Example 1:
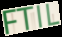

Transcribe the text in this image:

FTIL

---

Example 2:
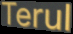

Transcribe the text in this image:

Terul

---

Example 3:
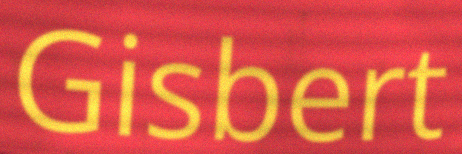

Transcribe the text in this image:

Gisbert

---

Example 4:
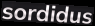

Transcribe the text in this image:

sordidus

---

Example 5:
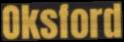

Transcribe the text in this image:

Oksford